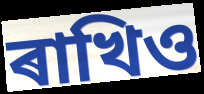
ৰাখিও